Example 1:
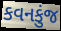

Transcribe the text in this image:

કવનકુંજ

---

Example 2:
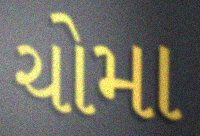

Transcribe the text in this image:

ચોમા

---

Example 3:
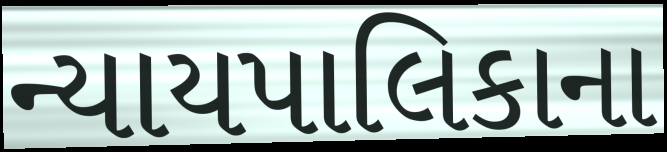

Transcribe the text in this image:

ન્યાયપાલિકાના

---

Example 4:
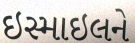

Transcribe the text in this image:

ઇસ્માઇલને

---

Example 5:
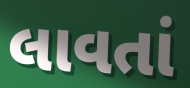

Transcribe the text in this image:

લાવતાં